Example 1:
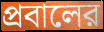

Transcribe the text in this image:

প্রবালের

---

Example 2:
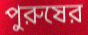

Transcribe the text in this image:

পুরুষের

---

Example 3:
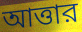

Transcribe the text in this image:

আত্তার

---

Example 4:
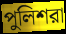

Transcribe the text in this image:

পুলিশরা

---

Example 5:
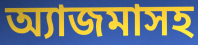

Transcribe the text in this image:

অ্যাজমাসহ